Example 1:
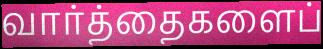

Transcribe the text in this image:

வார்த்தைகளைப்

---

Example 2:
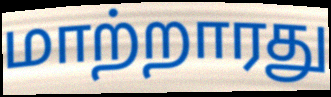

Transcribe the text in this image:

மாற்றாரது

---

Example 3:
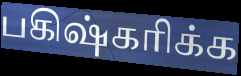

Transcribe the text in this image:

பகிஷ்கரிக்க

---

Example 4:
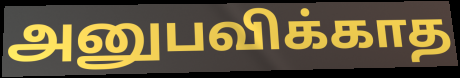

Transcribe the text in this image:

அனுபவிக்காத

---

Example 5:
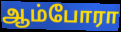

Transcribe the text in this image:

ஆம்போரா